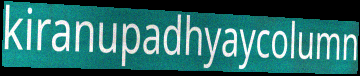
kiranupadhyaycolumn